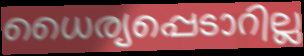
ധൈര്യപ്പെടാറില്ല